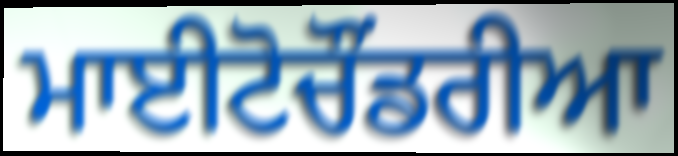
ਮਾਈਟੋਚੌਂਡਰੀਆ